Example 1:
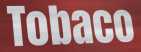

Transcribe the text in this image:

Tobaco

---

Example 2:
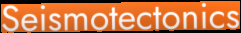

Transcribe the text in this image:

Seismotectonics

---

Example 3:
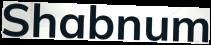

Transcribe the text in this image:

Shabnum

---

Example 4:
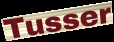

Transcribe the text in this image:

Tusser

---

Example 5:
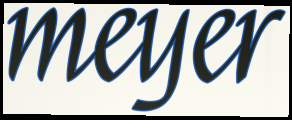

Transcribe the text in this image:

meyer